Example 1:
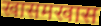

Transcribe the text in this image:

खासमखास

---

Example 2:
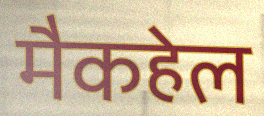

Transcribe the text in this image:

मैकहेल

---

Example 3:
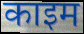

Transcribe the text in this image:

काइम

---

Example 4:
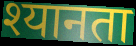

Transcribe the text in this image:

श्यानता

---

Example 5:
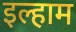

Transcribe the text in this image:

इल्हाम